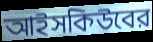
আইসকিউবের